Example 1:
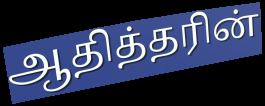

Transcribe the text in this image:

ஆதித்தரின்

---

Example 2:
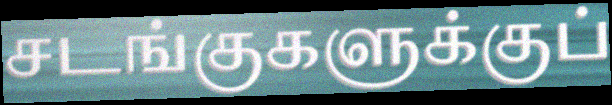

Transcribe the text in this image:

சடங்குகளுக்குப்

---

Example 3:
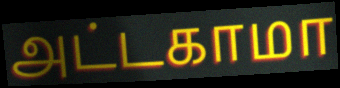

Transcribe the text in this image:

அட்டகாமா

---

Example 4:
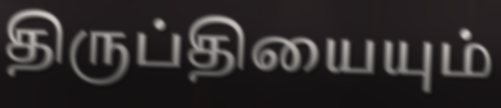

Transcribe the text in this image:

திருப்தியையும்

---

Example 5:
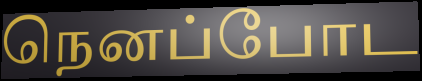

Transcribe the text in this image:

நெனப்போட